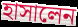
হাসালেন